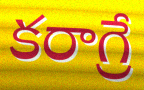
కరాగ్రే